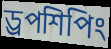
ড্রপশিপিং